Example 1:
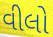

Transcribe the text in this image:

વીલો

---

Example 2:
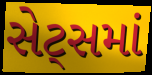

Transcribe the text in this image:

સેટ્સમાં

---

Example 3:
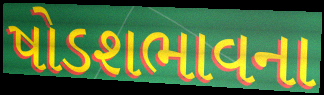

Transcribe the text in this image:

ષોડશભાવના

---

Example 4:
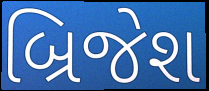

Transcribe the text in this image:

બ્રિજેશ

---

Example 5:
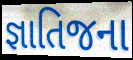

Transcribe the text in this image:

જ્ઞાતિજના